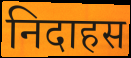
निदाहस